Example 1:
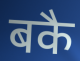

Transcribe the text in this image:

बकै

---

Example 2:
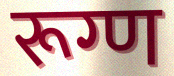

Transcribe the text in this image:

रूग्ण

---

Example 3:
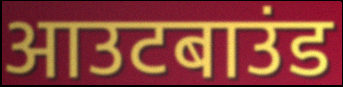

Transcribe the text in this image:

आउटबाउंड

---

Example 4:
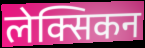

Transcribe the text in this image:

लेक्सिकन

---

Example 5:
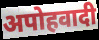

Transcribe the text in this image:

अपोहवादी